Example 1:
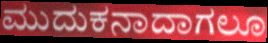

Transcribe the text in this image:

ಮುದುಕನಾದಾಗಲೂ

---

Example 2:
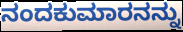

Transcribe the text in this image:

ನಂದಕುಮಾರನನ್ನು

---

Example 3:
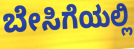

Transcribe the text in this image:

ಬೇಸಿಗೆಯಲ್ಲಿ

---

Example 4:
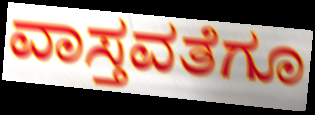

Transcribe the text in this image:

ವಾಸ್ತವತೆಗೂ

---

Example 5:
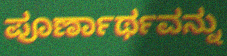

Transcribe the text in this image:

ಪೂರ್ಣಾರ್ಥವನ್ನು